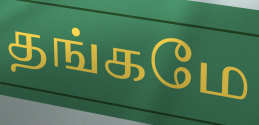
தங்கமே